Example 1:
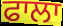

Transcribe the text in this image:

ਫਾਲਾ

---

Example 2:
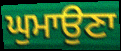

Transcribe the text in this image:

ਘੁਮਾਉਣਾ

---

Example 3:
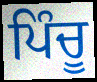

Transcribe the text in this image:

ਪਿੰਚੂ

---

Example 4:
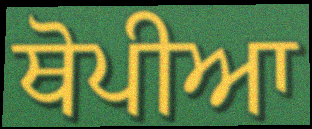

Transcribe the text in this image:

ਥੋਪੀਆ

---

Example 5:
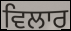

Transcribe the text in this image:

ਵਿਲਾਰ